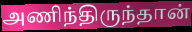
அணிந்திருந்தான்